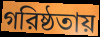
গরিষ্ঠতায়